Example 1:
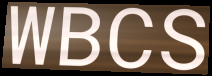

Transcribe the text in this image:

WBCS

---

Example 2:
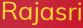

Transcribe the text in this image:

Rajasri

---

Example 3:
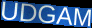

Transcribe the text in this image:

UDGAM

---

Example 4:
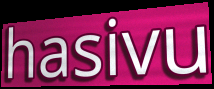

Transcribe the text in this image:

hasivu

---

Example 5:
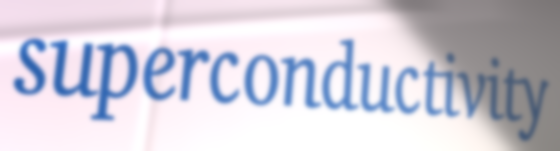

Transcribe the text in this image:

superconductivity